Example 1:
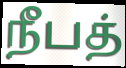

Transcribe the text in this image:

நீபத்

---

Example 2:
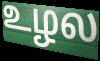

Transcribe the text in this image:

உழல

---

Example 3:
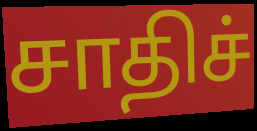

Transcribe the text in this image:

சாதிச்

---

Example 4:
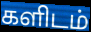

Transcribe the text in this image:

களிடம்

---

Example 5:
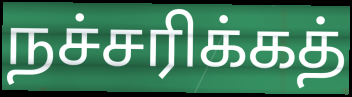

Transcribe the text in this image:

நச்சரிக்கத்